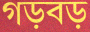
গড়বড়